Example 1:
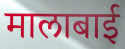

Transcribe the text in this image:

मालाबाई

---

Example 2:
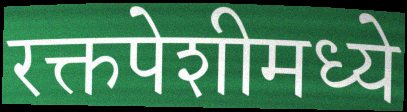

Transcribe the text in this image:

रक्तपेशीमध्ये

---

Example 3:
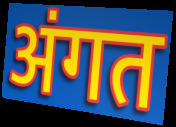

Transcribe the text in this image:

अंगत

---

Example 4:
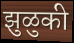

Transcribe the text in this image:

झुळुकी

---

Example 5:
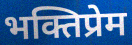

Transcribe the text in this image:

भक्तिप्रेम